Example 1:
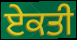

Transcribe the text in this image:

ਏਕਤੀ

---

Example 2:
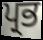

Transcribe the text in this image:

ਪ੍ਰਭ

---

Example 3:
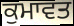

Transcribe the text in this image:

ਕੁਮਾਵਤ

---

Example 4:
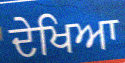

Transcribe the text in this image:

ਦੇਖਿਆ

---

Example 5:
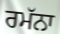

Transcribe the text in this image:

ਰਮੱਨਾ